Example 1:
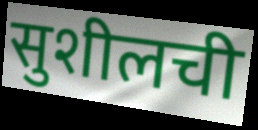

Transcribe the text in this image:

सुशीलची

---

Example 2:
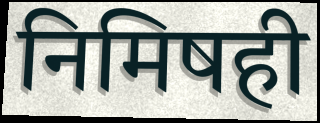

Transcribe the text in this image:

निमिषही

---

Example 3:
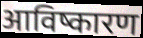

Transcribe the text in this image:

आविष्कारण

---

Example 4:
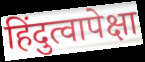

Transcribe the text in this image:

हिंदुत्वापेक्षा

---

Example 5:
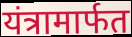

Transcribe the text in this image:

यंत्रामार्फत